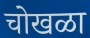
चोखळा